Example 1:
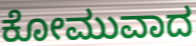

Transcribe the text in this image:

ಕೋಮುವಾದ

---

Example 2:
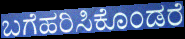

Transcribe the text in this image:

ಬಗೆಹರಿಸಿಕೊಂಡರೆ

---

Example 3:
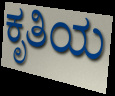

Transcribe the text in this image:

ಕೃತಿಯ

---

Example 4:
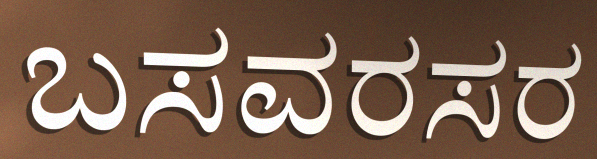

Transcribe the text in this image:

ಬಸವರಸರ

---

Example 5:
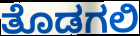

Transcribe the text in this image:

ತೊಡಗಲಿ